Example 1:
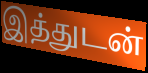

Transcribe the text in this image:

இத்துடன்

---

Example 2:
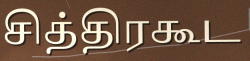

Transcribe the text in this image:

சித்திரகூட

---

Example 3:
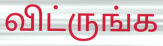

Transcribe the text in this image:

விட்ருங்க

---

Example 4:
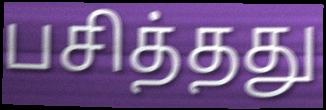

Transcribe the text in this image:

பசித்தது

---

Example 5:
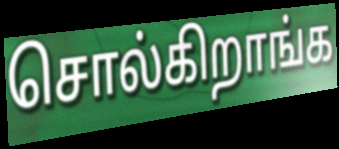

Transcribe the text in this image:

சொல்கிறாங்க